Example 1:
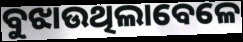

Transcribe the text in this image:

ବୁଝାଉଥିଲାବେଳେ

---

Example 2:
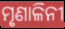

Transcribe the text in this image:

ମୃଣାଳିନୀ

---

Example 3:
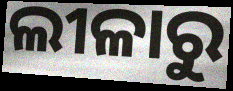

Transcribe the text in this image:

ଲୀଳାରୁ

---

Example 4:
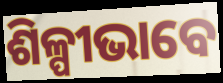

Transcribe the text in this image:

ଶିଳ୍ପୀଭାବେ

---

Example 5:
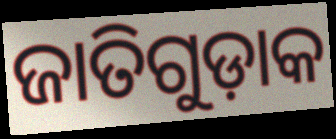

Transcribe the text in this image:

ଜାତିଗୁଡ଼ାକ